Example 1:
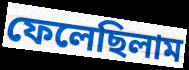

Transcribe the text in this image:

ফেলেছিলাম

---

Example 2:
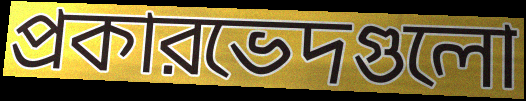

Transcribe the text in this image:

প্রকারভেদগুলো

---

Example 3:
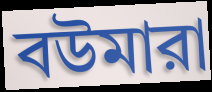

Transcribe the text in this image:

বউমারা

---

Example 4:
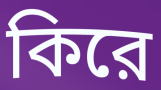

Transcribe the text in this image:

কিরে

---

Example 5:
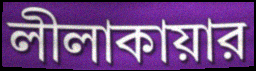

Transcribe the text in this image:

লীলাকায়ার